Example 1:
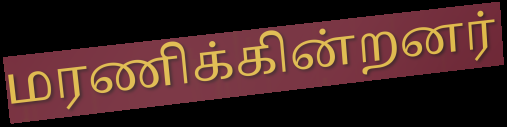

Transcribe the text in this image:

மரணிக்கின்றனர்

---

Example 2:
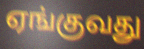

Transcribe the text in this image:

ஏங்குவது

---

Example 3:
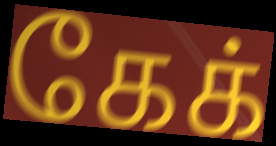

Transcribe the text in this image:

கேக்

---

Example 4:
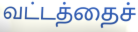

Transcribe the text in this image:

வட்டத்தைச்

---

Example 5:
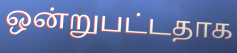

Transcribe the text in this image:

ஒன்றுபட்டதாக